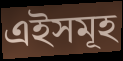
এইসমূহ